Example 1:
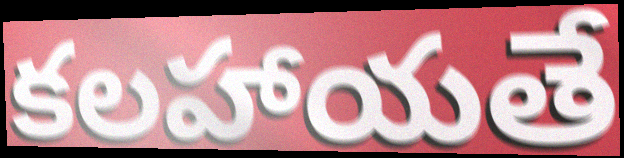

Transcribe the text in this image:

కలహాయతే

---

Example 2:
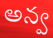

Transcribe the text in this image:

అన్వ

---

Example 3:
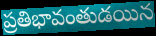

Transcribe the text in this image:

ప్రతిభావంతుడయిన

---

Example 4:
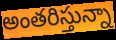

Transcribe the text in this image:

అంతరిస్తున్నా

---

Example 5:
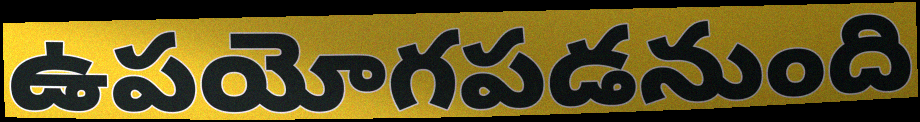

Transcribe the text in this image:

ఉపయోగపడనుంది